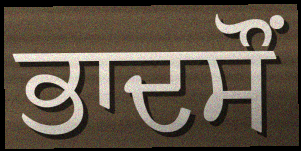
ਭਾਦਸੌਂ